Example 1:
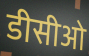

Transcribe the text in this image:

डीसीओ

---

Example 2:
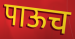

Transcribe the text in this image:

पाऊच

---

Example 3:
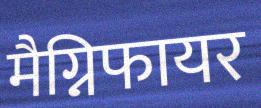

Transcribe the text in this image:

मैग्निफायर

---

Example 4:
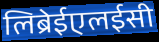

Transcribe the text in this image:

लिब्रेईएलईसी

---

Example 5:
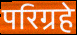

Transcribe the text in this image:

परिग्रहे